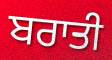
ਬਰਾਤੀ